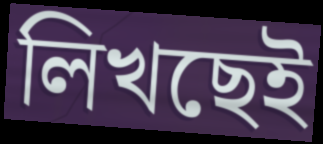
লিখছেই